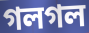
গলগল